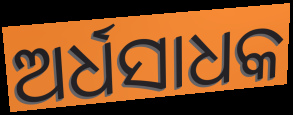
ଅର୍ଧସାଧକ